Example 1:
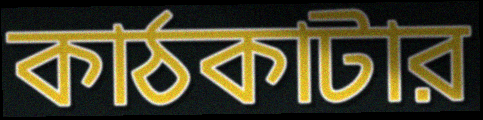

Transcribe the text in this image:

কাঠকাটার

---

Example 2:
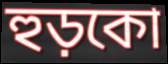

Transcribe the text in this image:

হুড়কো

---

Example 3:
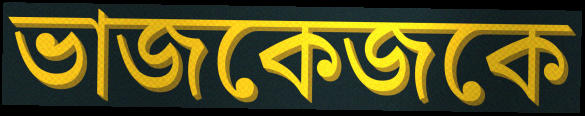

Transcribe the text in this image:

ভাজকেজকে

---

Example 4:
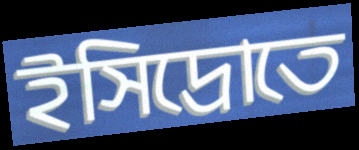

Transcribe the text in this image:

ইসিদ্রোতে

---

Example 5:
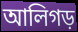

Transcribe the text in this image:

আলিগড়